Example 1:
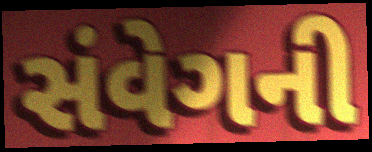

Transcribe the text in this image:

સંવેગની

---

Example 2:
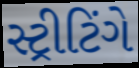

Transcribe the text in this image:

સ્ટ્રીટિંગે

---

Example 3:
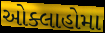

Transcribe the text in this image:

ઓક્લાહોમા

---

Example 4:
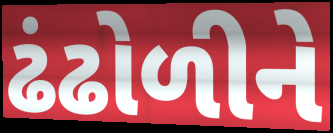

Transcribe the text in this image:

ઢંઢોળીને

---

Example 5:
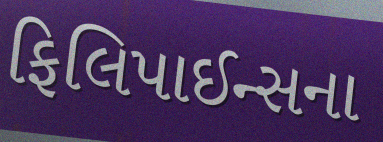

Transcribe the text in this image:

ફિલિપાઈન્સના